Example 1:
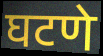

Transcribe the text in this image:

घटणे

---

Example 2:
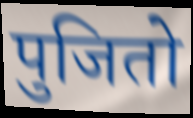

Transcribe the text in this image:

पुजितो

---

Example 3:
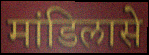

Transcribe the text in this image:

मांडिलासे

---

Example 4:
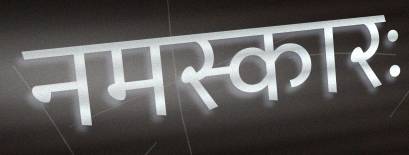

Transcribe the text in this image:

नमस्कारः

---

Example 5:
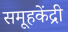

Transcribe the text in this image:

समूहकेंद्री